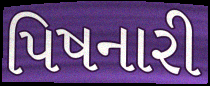
પિષનારી